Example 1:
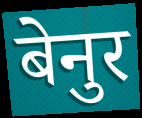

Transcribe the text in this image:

बेनुर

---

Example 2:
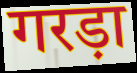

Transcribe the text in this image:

गरड़ा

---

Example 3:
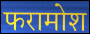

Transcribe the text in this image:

फरामोश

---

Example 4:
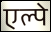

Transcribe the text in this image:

एल्पे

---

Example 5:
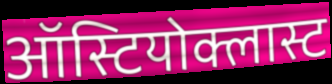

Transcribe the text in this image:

ऑस्टियोक्लास्ट